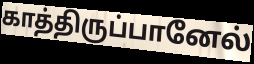
காத்திருப்பானேல்